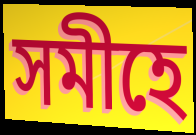
সমীহে